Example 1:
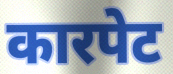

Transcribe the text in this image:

कारपेट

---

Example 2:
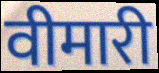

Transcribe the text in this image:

वीमारी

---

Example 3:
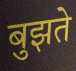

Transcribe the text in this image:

बुझते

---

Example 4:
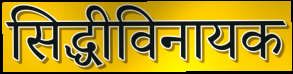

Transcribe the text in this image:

सिद्धीविनायक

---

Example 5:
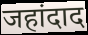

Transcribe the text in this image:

जहांदाद